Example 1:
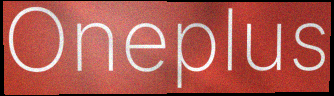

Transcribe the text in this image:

Oneplus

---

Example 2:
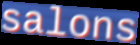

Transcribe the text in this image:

salons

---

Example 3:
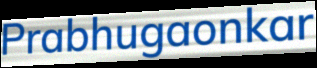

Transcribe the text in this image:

Prabhugaonkar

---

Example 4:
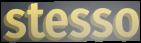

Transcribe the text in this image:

stesso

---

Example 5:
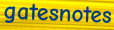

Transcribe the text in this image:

gatesnotes